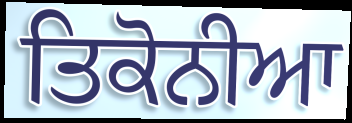
ਤਿਕੋਨੀਆ